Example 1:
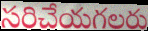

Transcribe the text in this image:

సరిచేయగలరు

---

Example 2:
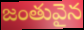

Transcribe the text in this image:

జంతువైన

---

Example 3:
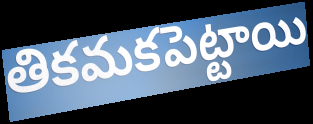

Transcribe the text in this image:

తికమకపెట్టాయి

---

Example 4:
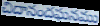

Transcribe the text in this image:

చిదానందఘనము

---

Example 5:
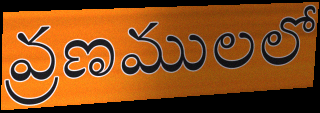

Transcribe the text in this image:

వ్రణములలో